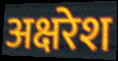
अक्षरेश